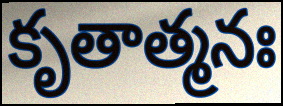
కృతాత్మనః